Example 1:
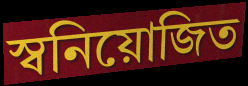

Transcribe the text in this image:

স্বনিয়োজিত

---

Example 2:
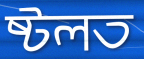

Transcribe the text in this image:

ষ্টলত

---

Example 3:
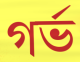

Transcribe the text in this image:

গৰ্ভ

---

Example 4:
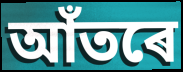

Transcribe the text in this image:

আঁতৰে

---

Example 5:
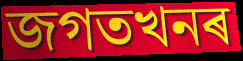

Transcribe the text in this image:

জগতখনৰ